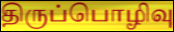
திருப்பொழிவு